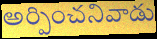
అర్పించనివాడు